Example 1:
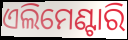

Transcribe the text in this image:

ଏଲିମେଣ୍ଟାରି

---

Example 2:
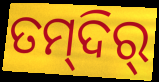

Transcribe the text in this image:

ତମ୍‍ଦିର୍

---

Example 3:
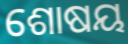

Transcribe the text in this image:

ଶୋଷୟ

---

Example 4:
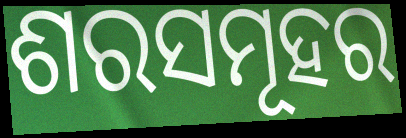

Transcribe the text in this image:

ଶରସମୂହର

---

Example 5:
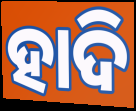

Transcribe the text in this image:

ହାଦି